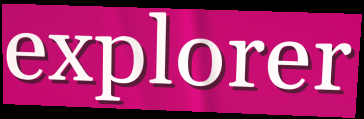
explorer